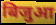
बिजुआ